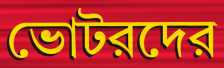
ভোটরদের